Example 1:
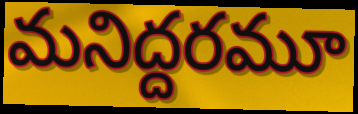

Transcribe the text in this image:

మనిద్దరమూ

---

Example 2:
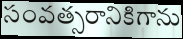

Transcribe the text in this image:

సంవత్సరానికిగాను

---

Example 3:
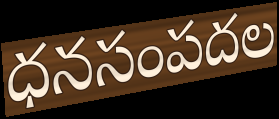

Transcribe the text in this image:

ధనసంపదల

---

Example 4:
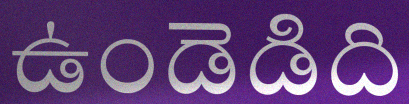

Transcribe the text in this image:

ఉండెడిది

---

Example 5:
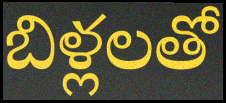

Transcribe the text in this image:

బిళ్లలతో